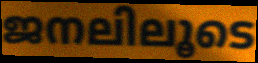
ജനലിലൂടെ